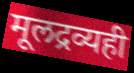
मूलद्रव्यही